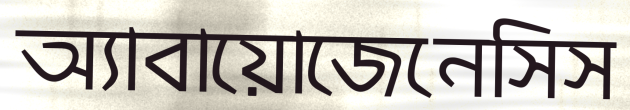
অ্যাবায়োজেনেসিস